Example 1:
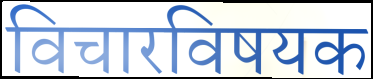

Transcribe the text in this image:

विचारविषयक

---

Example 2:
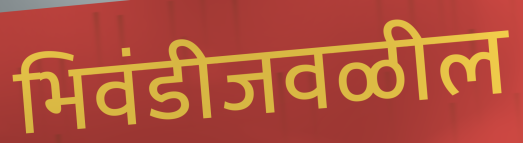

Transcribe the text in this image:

भिवंडीजवळील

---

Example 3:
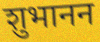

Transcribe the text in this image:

शुभानन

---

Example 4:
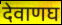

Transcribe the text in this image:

देवाणघ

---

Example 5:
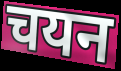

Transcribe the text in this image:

चयन